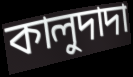
কালুদাদা